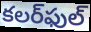
కలర్‌ఫుల్